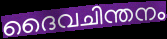
ദൈവചിന്തനം